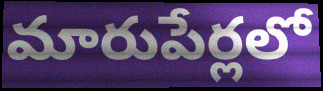
మారుపేర్లలో